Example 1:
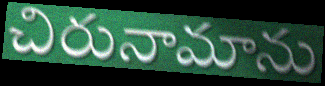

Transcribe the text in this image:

చిరునామాను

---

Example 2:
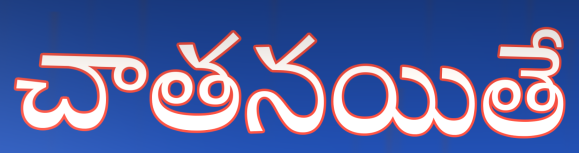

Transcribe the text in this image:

చాతనయితే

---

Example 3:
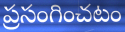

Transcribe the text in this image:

ప్రసంగించటం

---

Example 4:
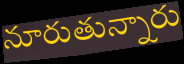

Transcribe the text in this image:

నూరుతున్నారు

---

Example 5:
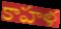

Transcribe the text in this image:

కాహళ